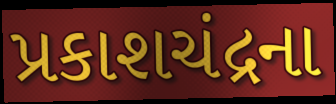
પ્રકાશચંદ્રના